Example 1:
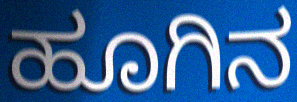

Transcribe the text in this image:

ಹೂಗಿನ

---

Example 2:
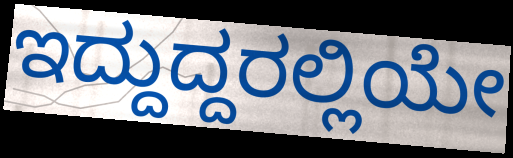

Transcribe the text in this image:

ಇದ್ದುದ್ದರಲ್ಲಿಯೇ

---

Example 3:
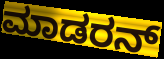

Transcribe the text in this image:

ಮಾಡರನ್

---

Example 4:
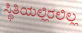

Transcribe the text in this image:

ಸ್ಥಿತಿಯಲ್ಲಿರಲಿಲ್ಲ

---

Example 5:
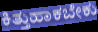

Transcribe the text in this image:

ಕಿತ್ತುಹಾಕಬೇಕು